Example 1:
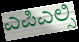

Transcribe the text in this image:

ಎಪಿಎಲ್ಸಿ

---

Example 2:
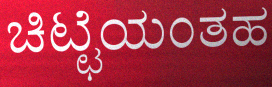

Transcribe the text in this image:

ಚಿಟ್ಟೆಯಂತಹ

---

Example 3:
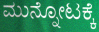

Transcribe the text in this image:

ಮುನ್ನೋಟಕ್ಕೆ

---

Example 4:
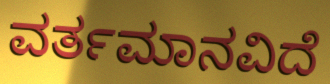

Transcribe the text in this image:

ವರ್ತಮಾನವಿದೆ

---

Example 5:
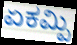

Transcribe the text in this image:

ಏಕಮ್ಪಿ